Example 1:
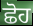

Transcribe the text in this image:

ਛੋਹ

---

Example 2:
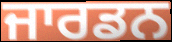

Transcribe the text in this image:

ਜਾਰਡਨ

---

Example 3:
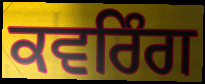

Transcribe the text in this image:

ਕਵਰਿੰਗ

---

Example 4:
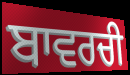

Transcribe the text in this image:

ਬਾਵਰਚੀ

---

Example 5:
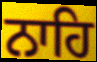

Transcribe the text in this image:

ਨਾਹਿ